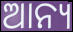
ଆନ୍ୟ